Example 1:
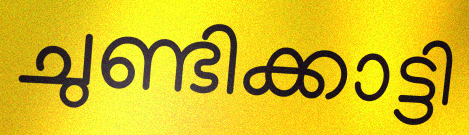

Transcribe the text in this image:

ചുണ്ടിക്കാട്ടി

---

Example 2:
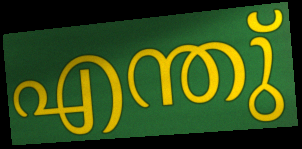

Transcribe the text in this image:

എന്തു്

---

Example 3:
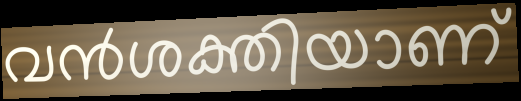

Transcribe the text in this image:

വൻശക്തിയാണ്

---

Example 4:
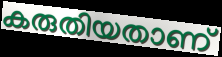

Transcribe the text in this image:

കരുതിയതാണ്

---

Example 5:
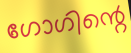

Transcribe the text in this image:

ഗോഗിന്റെ